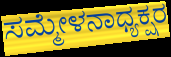
ಸಮ್ಮೇಳನಾಧ್ಯಕ್ಷರ